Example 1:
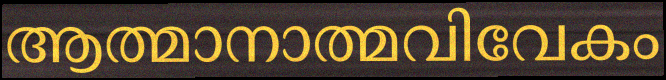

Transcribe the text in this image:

ആത്മാനാത്മവിവേകം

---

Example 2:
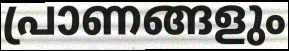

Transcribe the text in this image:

പ്രാണങ്ങളും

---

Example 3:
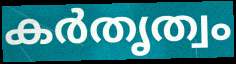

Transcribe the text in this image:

കർതൃത്വം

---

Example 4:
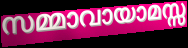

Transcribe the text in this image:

സമ്മാവായാമസ്സ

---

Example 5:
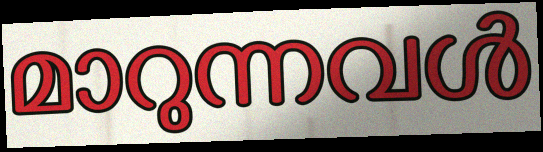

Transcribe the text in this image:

മാറുന്നവൾ